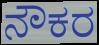
ನೌಕರ